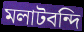
মলাটবন্দি